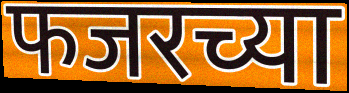
फजरच्या